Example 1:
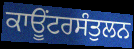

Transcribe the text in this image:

ਕਾਊਂਟਰਸੰਤੁਲਨ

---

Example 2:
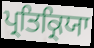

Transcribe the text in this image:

ਪ੍ਰਤਿਕ੍ਰਿਯਾ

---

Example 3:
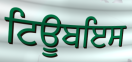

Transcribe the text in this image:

ਟਿਊਬਇਸ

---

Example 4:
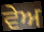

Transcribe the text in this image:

ਵੇਅ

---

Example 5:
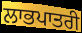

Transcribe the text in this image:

ਲਾਭਪਾਤਰੀ